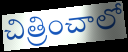
చిత్రించాలో